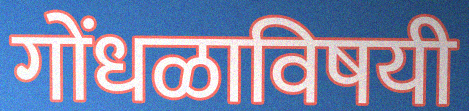
गोंधळाविषयी